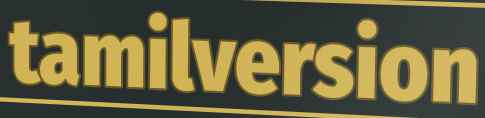
tamilversion